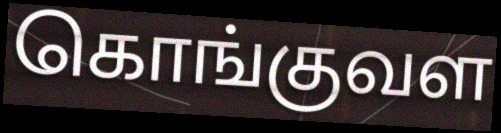
கொங்குவள